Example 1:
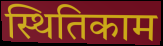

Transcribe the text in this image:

स्थितिकाम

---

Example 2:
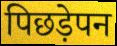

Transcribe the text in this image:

पिछड़ेपन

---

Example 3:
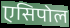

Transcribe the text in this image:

एसिपोल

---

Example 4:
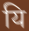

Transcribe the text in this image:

यि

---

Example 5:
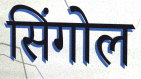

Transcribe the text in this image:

सिंगोल